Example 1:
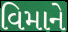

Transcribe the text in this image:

વિમાને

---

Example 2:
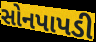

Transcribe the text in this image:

સોનપાપડી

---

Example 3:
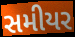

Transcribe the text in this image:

સમીયર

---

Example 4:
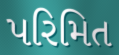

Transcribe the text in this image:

પરિમિત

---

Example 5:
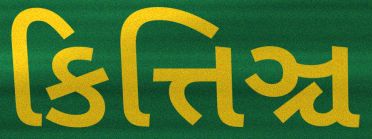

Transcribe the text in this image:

કિત્તિઞ્ચ